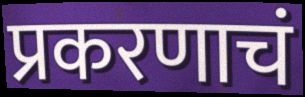
प्रकरणाचं